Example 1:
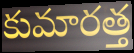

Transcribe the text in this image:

కుమారత్త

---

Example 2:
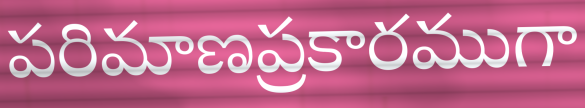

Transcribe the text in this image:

పరిమాణప్రకారముగా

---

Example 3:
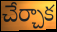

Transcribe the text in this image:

చేర్చాక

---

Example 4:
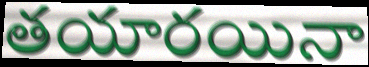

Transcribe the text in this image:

తయారయినా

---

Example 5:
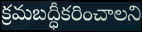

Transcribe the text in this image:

క్రమబద్ధీకరించాలని